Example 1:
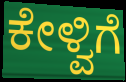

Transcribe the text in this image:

ಕೇಳ್ವಿಗೆ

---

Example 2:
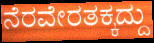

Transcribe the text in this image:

ನೆರವೇರತಕ್ಕದ್ದು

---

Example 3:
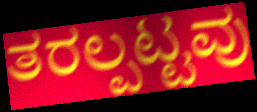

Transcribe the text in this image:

ತರಲ್ಪಟ್ಟವು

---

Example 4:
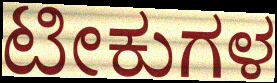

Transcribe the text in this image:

ಟೀಕುಗಳ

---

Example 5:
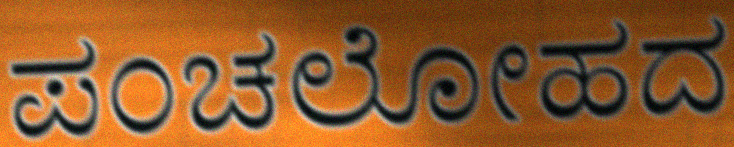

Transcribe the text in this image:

ಪಂಚಲೋಹದ